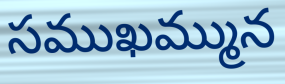
సముఖమ్మున